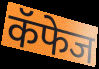
कॅफेज